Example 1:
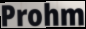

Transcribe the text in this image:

Prohm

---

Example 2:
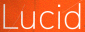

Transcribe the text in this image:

Lucid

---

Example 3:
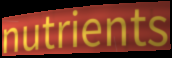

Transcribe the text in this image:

nutrients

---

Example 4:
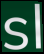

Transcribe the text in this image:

sl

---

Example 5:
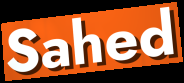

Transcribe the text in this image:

Sahed